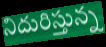
నిదురిస్తున్న